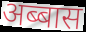
अब्बास